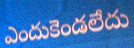
ఎందుకెండలేదు